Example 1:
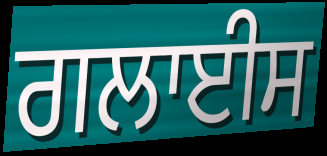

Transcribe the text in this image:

ਗਲਾਈਸ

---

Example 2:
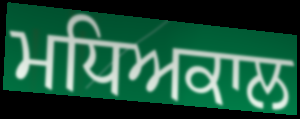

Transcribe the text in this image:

ਮਧਿਅਕਾਲ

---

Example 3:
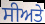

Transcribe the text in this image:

ਸੀਅਤੇ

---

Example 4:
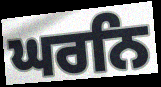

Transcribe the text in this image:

ਘਰਨਿ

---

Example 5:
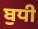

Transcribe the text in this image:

ਬੁਧੀ